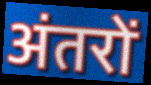
अंतरों